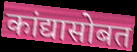
कांद्यासोबत